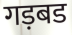
गड़बड